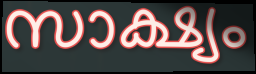
സാക്ഷ്യം